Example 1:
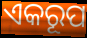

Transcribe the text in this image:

ଏକରୂପ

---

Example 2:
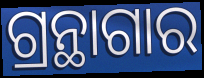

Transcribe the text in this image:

ଗ୍ରନ୍ଥାଗାର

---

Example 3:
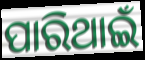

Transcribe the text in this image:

ପାରିଥାଇଁ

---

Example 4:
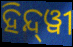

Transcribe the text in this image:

ହିନ୍ଦ୍‍ୱୀ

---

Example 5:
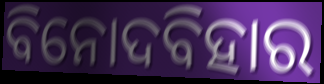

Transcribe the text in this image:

ବିନୋଦବିହାର